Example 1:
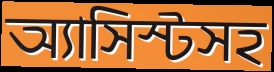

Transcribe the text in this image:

অ্যাসিস্টসহ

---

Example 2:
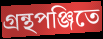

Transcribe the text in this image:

গ্রন্থপঞ্জিতে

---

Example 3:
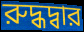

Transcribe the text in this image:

রুদ্ধদ্বার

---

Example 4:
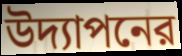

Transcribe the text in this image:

উদ্যাপনের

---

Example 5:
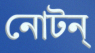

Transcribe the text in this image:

নোটন্